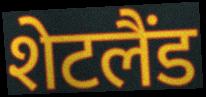
शेटलैंड